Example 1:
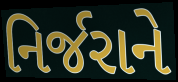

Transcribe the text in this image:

નિર્જરાને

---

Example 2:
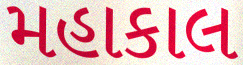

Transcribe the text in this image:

મહાકાલ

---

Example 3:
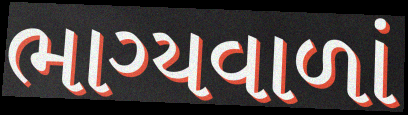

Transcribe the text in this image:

ભાગ્યવાળાં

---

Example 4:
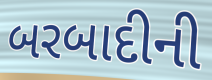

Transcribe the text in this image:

બરબાદીની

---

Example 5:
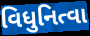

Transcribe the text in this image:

વિધુનિત્વા